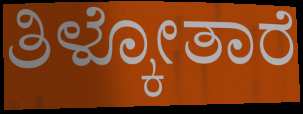
ತಿಳ್ಕೋತಾರೆ